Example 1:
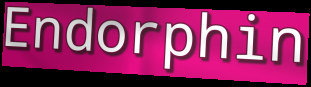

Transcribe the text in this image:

Endorphin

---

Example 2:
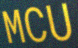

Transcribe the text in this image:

MCU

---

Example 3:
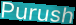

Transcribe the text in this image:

Purush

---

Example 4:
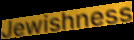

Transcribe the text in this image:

Jewishness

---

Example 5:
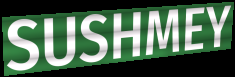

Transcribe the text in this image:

SUSHMEY